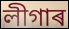
লীগাৰ